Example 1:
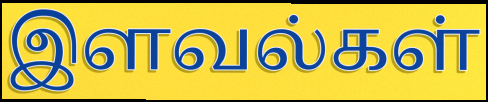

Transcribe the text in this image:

இளவல்கள்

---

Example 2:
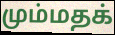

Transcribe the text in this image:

மும்மதக்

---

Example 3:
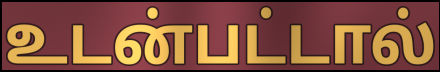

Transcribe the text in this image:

உடன்பட்டால்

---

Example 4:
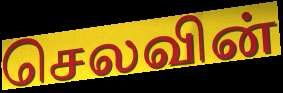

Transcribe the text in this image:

செலவின்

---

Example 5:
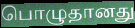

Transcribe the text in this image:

பொழுதானது